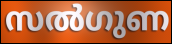
സൽഗുണ